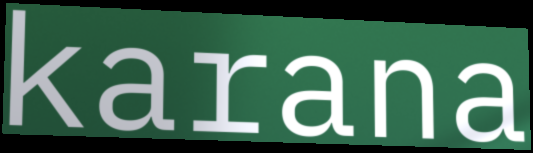
karana